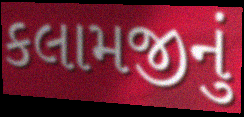
કલામજીનું